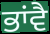
ਭਾਂਵੈ